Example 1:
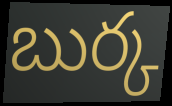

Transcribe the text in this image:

బుర్క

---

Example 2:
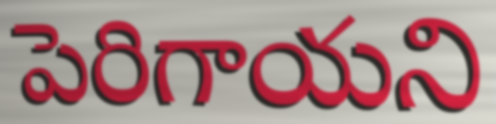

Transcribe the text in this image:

పెరిగాయని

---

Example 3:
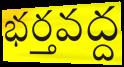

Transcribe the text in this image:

భర్తవద్ద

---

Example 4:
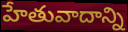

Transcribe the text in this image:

హేతువాదాన్ని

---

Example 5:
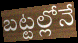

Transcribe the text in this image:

బట్టల్లోనే